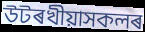
উটৰখীয়াসকলৰ